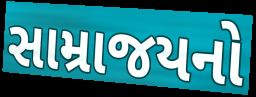
સામ્રાજયનો